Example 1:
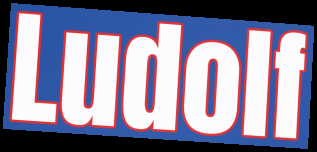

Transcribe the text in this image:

Ludolf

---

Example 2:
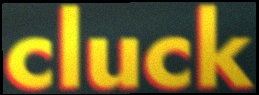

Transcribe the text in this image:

cluck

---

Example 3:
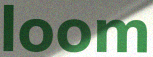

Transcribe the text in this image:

loom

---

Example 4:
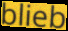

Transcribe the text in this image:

blieb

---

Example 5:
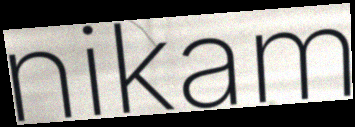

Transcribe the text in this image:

nikam